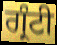
ਗ੍ਰੰਟੀ